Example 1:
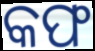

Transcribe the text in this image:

କଫ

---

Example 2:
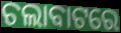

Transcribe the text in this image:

ଚଲାବାଟରେ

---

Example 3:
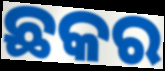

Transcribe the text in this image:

ଛକର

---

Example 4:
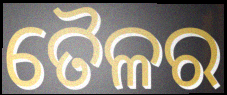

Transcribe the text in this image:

ତୈଳର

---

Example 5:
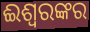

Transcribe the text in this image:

ଈଶ୍ୱରଙ୍କର